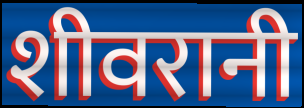
शीवरानी